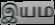
இயம